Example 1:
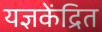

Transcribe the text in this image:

यज्ञकेंद्रित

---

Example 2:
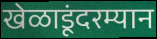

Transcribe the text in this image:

खेळाडूंदरम्यान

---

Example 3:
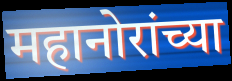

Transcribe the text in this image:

महानोरांच्या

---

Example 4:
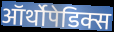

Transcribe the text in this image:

ऑर्थोपेडिक्स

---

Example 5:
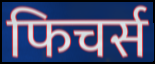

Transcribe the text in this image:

फिचर्स